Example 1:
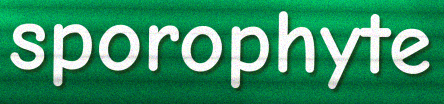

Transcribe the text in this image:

sporophyte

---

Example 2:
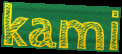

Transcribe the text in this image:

kami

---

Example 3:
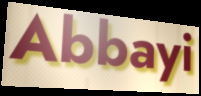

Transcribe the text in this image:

Abbayi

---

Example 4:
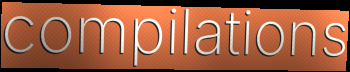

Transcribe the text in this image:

compilations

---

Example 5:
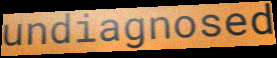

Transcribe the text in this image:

undiagnosed